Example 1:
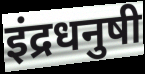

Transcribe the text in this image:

इंद्रधनुषी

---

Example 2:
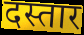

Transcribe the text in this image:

दस्तार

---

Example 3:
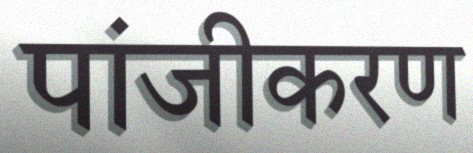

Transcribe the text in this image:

पांजीकरण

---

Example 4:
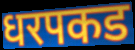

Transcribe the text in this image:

धरपकड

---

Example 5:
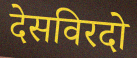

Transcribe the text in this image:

देसविरदो